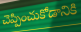
చెప్పించుకోడానికి